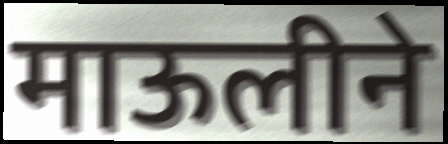
माऊलीने